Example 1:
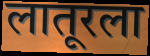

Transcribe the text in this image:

लातूरला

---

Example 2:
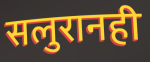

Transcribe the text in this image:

सलुरानही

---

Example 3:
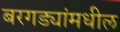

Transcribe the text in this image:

बरगड्यांमधील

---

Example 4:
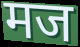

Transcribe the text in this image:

मज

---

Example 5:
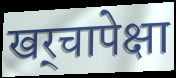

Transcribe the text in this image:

खर्चापेक्षा